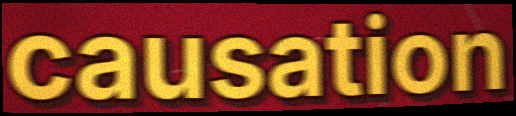
causation